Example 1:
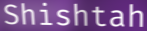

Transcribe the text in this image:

Shishtah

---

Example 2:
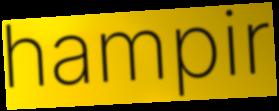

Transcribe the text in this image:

hampir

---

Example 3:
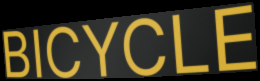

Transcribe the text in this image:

BICYCLE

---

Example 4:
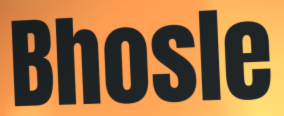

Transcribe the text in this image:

Bhosle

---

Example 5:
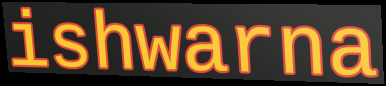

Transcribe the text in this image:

ishwarna